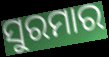
ସୁରମାର